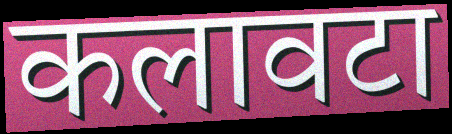
कलावटा